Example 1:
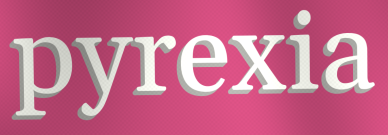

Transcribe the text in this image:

pyrexia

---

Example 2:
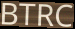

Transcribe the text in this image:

BTRC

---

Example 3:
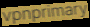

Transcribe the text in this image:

vpnprimary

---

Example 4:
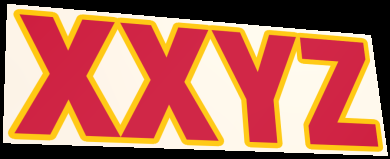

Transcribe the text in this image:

XXYZ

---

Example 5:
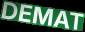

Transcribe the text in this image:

DEMAT